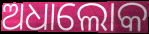
ଅଧାଲୋକ